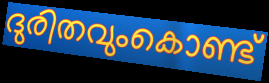
ദുരിതവുംകൊണ്ട്